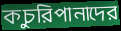
কচুরিপানাদের